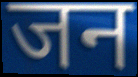
जन